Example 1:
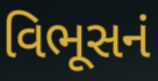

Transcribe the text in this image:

વિભૂસનં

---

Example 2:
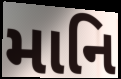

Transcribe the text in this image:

માનિ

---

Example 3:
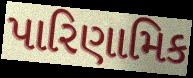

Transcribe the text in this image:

પારિણામિક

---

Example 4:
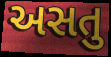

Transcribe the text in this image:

અસતુ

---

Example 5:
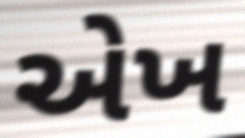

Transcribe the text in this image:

એખ